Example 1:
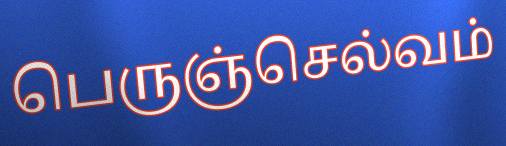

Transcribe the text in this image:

பெருஞ்செல்வம்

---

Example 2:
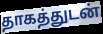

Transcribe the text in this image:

தாகத்துடன்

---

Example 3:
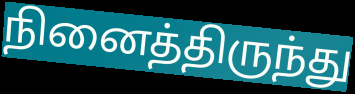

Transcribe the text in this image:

நினைத்திருந்து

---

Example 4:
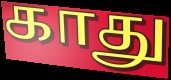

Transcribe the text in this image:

காது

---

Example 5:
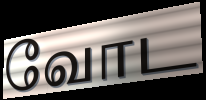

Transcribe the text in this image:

வோட